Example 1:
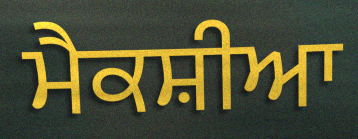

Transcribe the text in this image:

ਮੈਕਸ਼ੀਆ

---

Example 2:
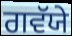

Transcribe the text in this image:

ਗਵੱਯੇ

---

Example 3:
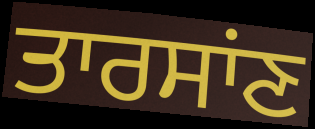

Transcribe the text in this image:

ਤਾਰਸਾਂਣ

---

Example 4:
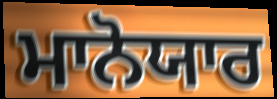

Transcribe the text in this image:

ਮਾਨੋਯਾਰ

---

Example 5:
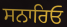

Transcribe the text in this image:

ਸਨਾਰਿਓ